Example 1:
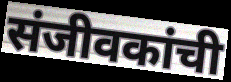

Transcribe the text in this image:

संजीवकांची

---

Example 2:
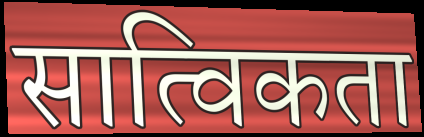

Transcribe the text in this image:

सात्विकता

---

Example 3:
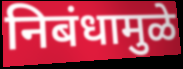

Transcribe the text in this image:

निबंधामुळे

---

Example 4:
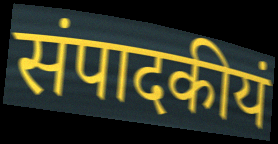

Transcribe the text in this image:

संपादकीयं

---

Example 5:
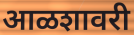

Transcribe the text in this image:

आळशावरी